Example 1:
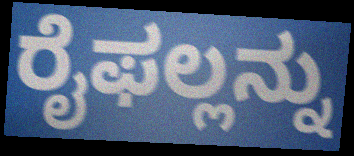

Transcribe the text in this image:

ರೈಫಲ್ಲನ್ನು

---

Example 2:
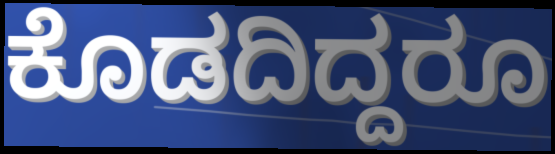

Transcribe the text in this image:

ಕೊಡದಿದ್ದರೂ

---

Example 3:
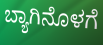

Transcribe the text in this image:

ಬ್ಯಾಗಿನೊಳಗೆ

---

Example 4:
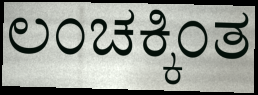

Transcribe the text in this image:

ಲಂಚಕ್ಕಿಂತ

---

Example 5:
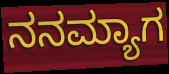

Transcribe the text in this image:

ನನಮ್ಯಾಗ